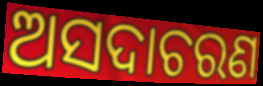
ଅସଦାଚରଣ